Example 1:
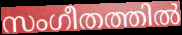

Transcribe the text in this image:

സംഗീതത്തിൽ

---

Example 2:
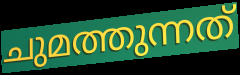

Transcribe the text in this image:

ചുമത്തുന്നത്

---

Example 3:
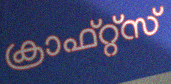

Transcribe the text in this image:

ക്രാഫ്റ്റ്സ്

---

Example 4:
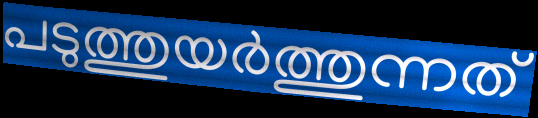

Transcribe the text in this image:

പടുത്തുയർത്തുന്നത്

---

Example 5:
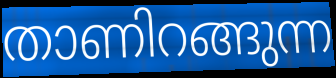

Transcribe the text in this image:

താണിറങ്ങുന്ന